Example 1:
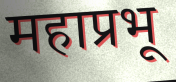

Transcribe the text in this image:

महाप्रभू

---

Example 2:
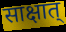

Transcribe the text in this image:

साक्षात्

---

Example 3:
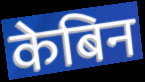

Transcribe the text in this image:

केबिन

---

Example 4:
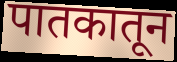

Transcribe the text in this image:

पातकातून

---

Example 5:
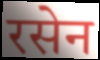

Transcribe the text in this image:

रसेन